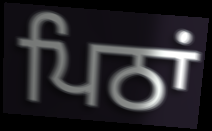
ਪਿਠਾਂ